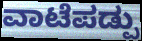
ವಾಟೆಪಡ್ಪು